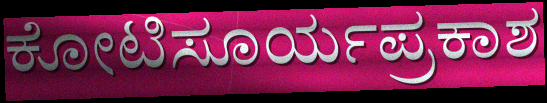
ಕೋಟಿಸೂರ್ಯಪ್ರಕಾಶ